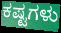
ಕಷ್ಟಗಳು